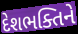
દેશભક્તિને